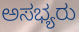
ಅಸಭ್ಯರು